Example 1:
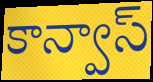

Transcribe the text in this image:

కాన్వాస్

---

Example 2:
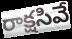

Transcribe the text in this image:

రాక్షసివే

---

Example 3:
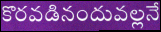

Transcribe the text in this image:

కొరవడినందువల్లనే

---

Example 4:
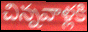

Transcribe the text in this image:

చిన్నవాళ్లకి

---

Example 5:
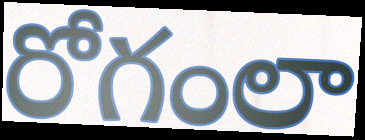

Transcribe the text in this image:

రోగంలా